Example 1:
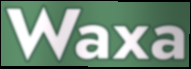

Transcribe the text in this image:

Waxa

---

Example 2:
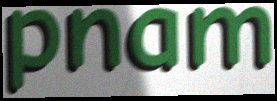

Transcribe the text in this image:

pnam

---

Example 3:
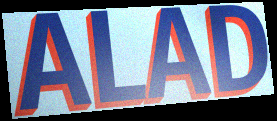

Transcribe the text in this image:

ALAD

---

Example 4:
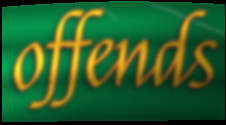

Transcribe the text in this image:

offends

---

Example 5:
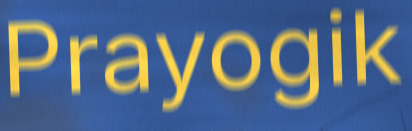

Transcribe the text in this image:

Prayogik